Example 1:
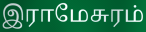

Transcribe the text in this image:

இராமேசுரம்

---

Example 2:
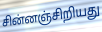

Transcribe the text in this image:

சின்னஞ்சிறியது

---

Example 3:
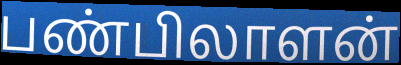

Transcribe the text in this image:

பண்பிலாளன்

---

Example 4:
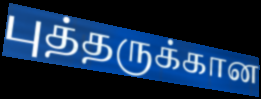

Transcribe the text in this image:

புத்தருக்கான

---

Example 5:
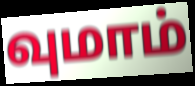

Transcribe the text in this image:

வுமாம்